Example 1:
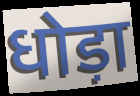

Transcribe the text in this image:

धोड़ा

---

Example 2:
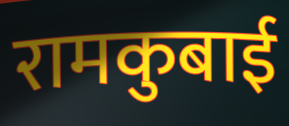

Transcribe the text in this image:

रामकुबाई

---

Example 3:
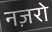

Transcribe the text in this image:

नज़रो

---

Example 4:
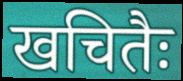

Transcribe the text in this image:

खचितैः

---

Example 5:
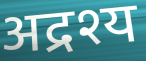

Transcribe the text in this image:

अद्रश्य